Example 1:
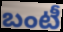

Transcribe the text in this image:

బంటీ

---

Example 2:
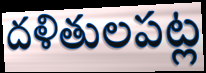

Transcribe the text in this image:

దళితులపట్ల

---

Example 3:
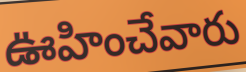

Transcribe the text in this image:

ఊహించేవారు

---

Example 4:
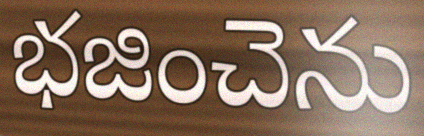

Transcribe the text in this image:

భజించెను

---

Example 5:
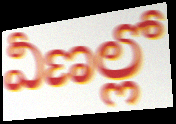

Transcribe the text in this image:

వీణల్లో